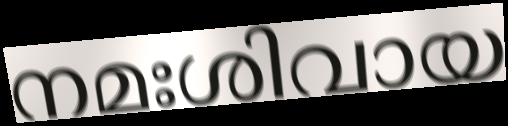
നമഃശിവായ